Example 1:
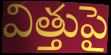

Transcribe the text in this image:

విత్తుపై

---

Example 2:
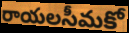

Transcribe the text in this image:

రాయలసీమకో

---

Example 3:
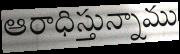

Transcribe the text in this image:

ఆరాధిస్తున్నాము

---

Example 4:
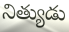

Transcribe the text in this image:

నిత్యుడు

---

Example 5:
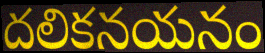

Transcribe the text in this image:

దలికనయనం